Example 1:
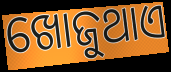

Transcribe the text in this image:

ଖୋଜୁଥାଏ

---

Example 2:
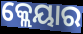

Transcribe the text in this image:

କ୍ଲେୟାର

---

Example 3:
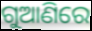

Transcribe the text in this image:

ଗୁଆଣିରେ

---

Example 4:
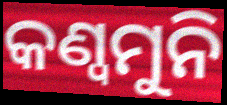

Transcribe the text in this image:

କଣ୍ୱମୁନି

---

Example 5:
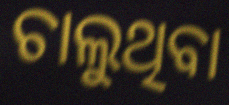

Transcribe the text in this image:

ଚାଲୁଥିବା